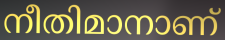
നീതിമാനാണ്